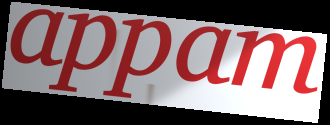
appam